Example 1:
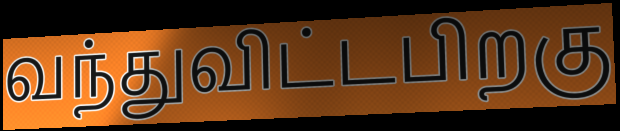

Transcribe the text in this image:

வந்துவிட்டபிறகு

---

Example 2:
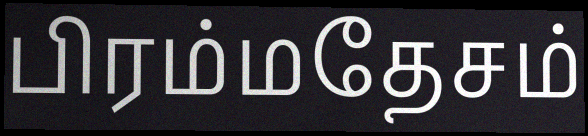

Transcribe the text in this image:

பிரம்மதேசம்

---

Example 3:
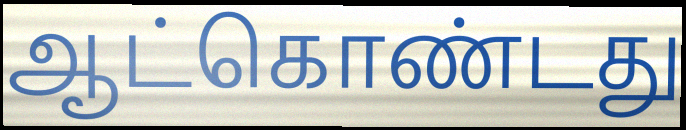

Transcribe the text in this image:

ஆட்கொண்டது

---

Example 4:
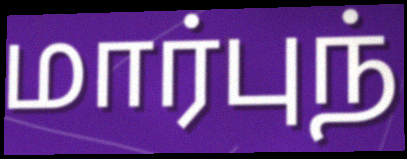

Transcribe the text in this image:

மார்புந்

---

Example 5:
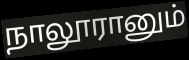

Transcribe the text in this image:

நாலூரானும்